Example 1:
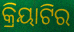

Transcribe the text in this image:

କ୍ରିୟାଟିର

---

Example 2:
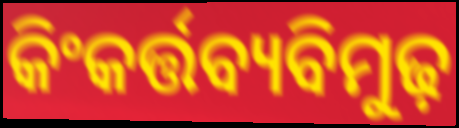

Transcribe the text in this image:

କିଂକର୍ତ୍ତବ୍ୟବିମୁଢ଼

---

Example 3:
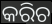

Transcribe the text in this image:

କରିଚ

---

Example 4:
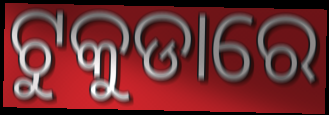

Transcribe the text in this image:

ଟୁକୁଡାରେ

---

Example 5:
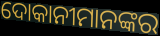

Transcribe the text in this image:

ଦୋକାନୀମାନଙ୍କର